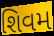
શિવમ